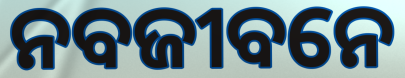
ନବଜୀବନେ